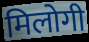
मिलोगी